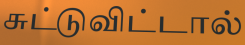
சுட்டுவிட்டால்